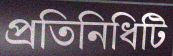
প্রতিনিধিটি